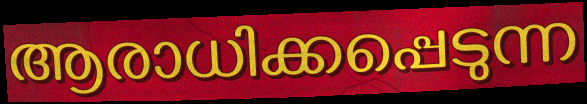
ആരാധിക്കപ്പെടുന്ന